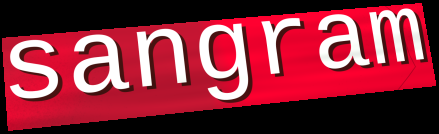
sangram